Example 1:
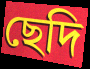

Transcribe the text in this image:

ছেদি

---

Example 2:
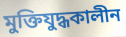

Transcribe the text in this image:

মুক্তিযুদ্ধকালীন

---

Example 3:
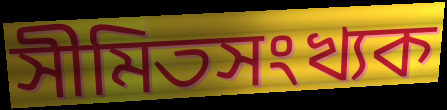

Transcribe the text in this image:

সীমিতসংখ্যক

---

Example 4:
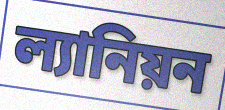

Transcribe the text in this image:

ল্যানিয়ন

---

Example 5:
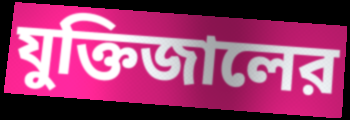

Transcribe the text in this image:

যুক্তিজালের